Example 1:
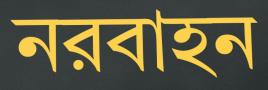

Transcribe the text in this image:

নরবাহন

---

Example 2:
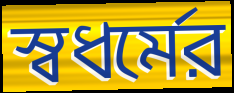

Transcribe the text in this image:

স্বধর্মের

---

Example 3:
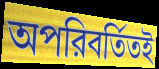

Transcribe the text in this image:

অপরিবর্তিতই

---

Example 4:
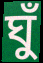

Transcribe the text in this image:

ঘুঁ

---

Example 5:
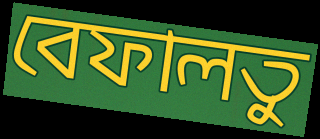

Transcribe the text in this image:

বেফালতু